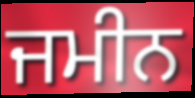
ਜਮੀਨ